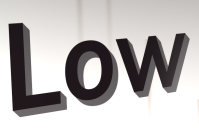
Low